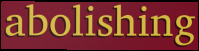
abolishing